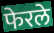
फेरले